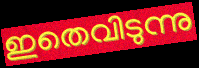
ഇതെവിടുന്നു